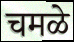
चमळे